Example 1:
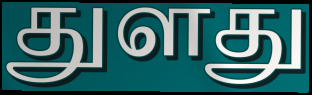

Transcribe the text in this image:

துளது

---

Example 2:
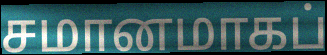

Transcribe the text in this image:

சமானமாகப்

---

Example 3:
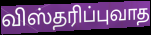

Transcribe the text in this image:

விஸ்தரிப்புவாத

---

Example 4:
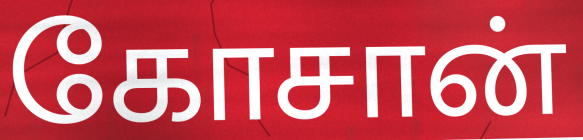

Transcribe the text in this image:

கோசான்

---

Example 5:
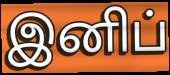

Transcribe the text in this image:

இனிப்